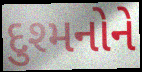
દુશ્મનોને